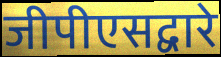
जीपीएसद्वारे